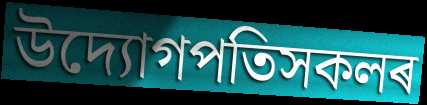
উদ্যোগপতিসকলৰ